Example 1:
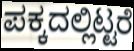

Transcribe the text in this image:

ಪಕ್ಕದಲ್ಲಿಟ್ಟರೆ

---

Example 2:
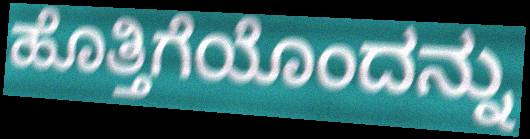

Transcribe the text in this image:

ಹೊತ್ತಿಗೆಯೊಂದನ್ನು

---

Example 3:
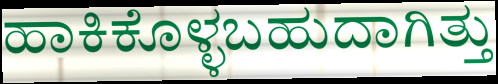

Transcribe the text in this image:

ಹಾಕಿಕೊಳ್ಳಬಹುದಾಗಿತ್ತು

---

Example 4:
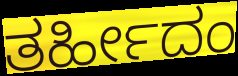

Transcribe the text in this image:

ತರ್ಹೀದಂ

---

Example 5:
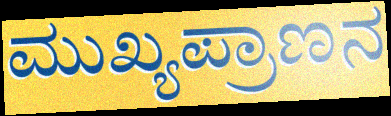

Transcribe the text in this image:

ಮುಖ್ಯಪ್ರಾಣನ